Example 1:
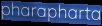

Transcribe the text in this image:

pharapharta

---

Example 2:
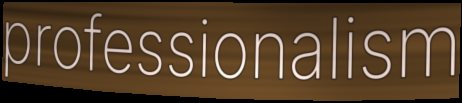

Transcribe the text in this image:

professionalism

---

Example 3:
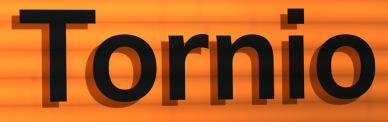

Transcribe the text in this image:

Tornio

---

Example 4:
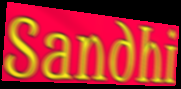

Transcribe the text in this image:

Sandhi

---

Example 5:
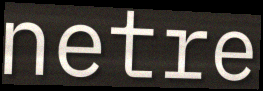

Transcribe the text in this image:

netre